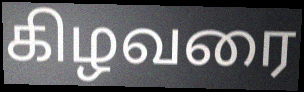
கிழவரை